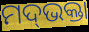
ମଦ୍‌ଭକ୍ତା